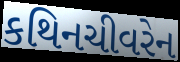
કથિનચીવરેન